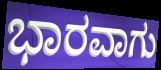
ಭಾರವಾಗು